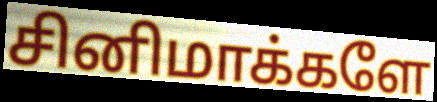
சினிமாக்களே